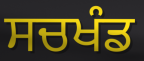
ਸਚਖੰਡ